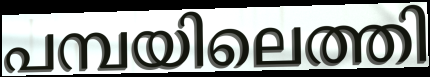
പമ്പയിലെത്തി